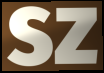
sz